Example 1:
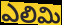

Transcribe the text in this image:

ఎలిమి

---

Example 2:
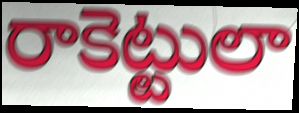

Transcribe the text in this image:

రాకెట్టులా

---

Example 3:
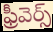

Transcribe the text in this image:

ఫ్రీవెర్స్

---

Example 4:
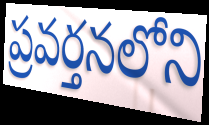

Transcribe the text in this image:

ప్రవర్తనలోని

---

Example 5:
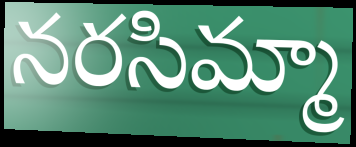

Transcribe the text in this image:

నరసిమ్మా